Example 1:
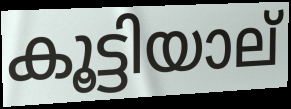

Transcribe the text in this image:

കൂട്ടിയാല്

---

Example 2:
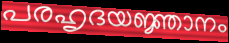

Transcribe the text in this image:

പരഹൃദയജ്ഞാനം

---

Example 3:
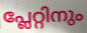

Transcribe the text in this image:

പ്ലേറ്റിനും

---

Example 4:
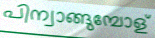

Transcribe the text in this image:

പിന്വാങ്ങുമ്പോള്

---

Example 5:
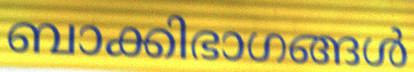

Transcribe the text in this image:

ബാക്കിഭാഗങ്ങൾ